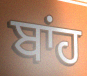
ਬਾਂਹ